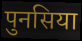
पुनसिया